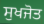
ਸੁਖਜੋਤ